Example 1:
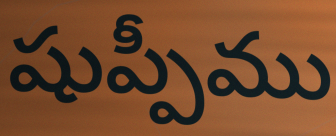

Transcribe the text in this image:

షుప్పీము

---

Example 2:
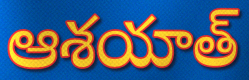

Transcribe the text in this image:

ఆశయాత్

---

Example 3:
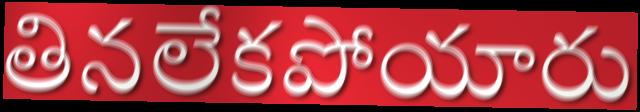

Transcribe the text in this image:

తినలేకపోయారు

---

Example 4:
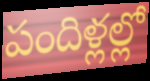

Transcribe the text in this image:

పందిళ్లల్లో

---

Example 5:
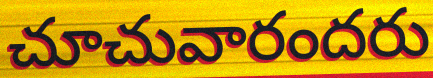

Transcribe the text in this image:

చూచువారందరు